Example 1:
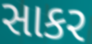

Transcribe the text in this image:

સાકર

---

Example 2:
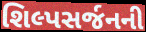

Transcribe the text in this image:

શિલ્પસર્જનની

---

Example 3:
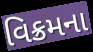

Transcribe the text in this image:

વિક્રમના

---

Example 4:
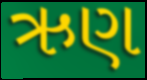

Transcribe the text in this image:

ઋણ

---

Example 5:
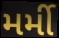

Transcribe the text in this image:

મર્મી